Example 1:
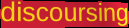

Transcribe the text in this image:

discoursing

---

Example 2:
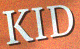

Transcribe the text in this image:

KID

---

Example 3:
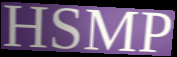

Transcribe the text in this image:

HSMP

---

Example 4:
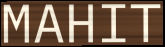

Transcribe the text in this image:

MAHIT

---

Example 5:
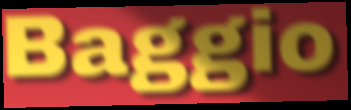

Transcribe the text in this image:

Baggio